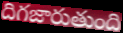
దిగజారుతుంది